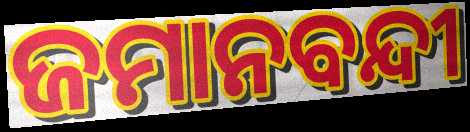
ଜମାନବନ୍ଦୀ